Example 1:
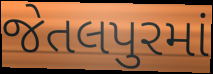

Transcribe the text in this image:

જેતલપુરમાં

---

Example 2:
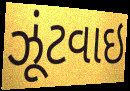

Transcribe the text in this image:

ઝૂંટવાઇ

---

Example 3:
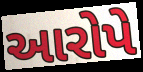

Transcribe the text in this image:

આરોપે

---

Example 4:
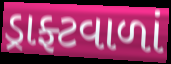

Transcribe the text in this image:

ડ્રાફ્ટવાળાં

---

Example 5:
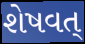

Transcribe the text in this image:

શેષવત્